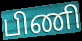
பிணி